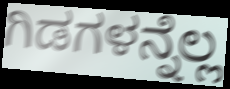
ಗಿಡಗಳನ್ನೆಲ್ಲ